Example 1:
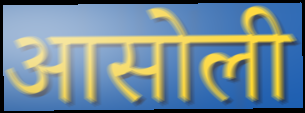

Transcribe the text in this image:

आसोली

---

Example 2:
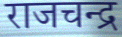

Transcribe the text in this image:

राजचन्द्र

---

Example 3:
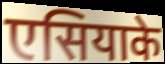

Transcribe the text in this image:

एसियाके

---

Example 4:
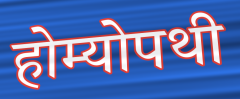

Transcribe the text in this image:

होम्योपथी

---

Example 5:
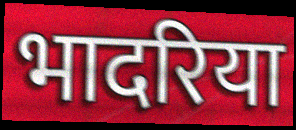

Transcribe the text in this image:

भादरिया